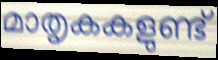
മാതൃകകളുണ്ട്